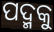
ପଦ୍ମକୁ